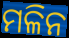
ମଳିନ